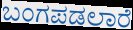
ಬಂಗಪಡಲಾರೆ